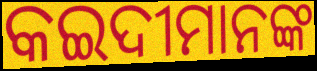
କଇଦୀମାନଙ୍କ